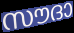
സൗദാ